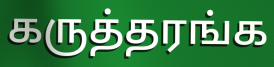
கருத்தரங்க